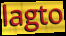
lagto